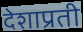
देशाप्रती